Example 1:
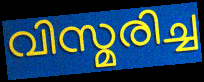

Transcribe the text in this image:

വിസ്മരിച്ച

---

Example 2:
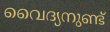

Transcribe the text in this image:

വൈദ്യനുണ്ട്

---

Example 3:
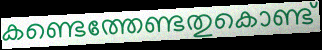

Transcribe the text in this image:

കണ്ടെത്തേണ്ടതുകൊണ്ട്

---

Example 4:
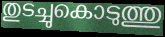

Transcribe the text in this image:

തുടച്ചുകൊടുത്തു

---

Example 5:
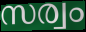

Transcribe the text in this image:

സര്വം